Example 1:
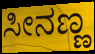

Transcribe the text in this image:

ಸೀನಣ್ಣ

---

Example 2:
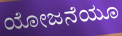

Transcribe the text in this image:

ಯೋಜನೆಯೂ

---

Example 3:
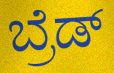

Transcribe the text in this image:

ಬ್ರೆಡ್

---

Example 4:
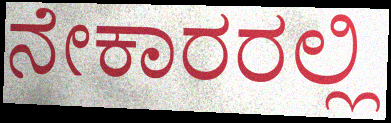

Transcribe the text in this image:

ನೇಕಾರರಲ್ಲಿ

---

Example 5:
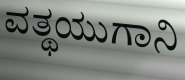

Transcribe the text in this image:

ವತ್ಥಯುಗಾನಿ